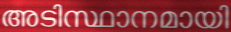
അടിസ്ഥാനമായി